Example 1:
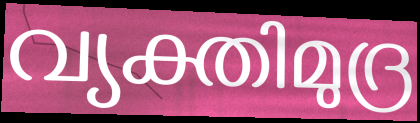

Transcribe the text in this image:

വ്യക്തിമുദ്ര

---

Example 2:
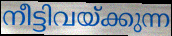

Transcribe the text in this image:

നീട്ടിവയ്ക്കുന്ന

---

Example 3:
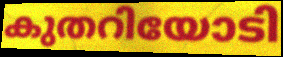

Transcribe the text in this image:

കുതറിയോടി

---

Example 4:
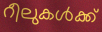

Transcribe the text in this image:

റീലുകൾക്ക്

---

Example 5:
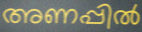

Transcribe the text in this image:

അണപ്പിൽ